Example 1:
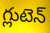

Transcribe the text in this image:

గ్లుటెన్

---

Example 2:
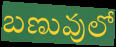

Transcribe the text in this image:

బణువులో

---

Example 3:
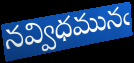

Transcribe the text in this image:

నవ్విధమునఁ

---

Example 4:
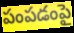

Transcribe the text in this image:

పంపడంపై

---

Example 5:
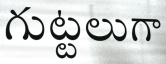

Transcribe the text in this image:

గుట్టలుగా